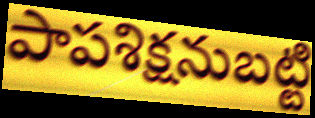
పాపశిక్షనుబట్టి